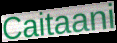
Caitaani